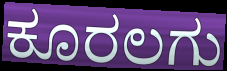
ಕೂರಲಗು